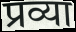
प्रव्या